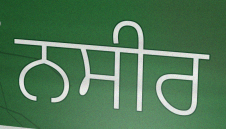
ਨਸੀਰ